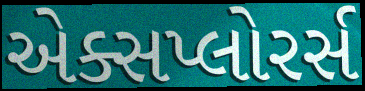
એક્સપ્લોરર્સ